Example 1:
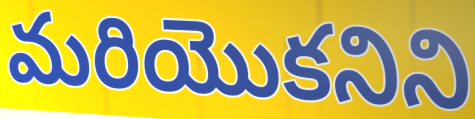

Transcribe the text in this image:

మరియొకనిని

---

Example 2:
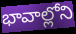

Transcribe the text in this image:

భావాల్లోని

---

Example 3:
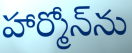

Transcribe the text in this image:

హార్మోన్‌ను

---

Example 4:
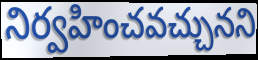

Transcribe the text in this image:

నిర్వహించవచ్చునని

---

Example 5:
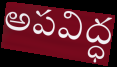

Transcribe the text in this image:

అపవిద్ధ